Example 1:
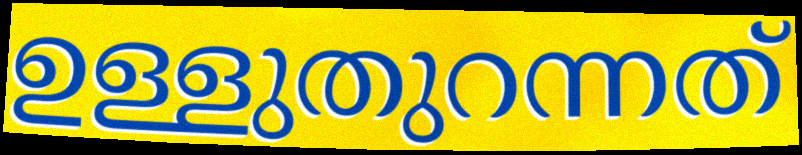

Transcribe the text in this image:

ഉള്ളുതുറന്നത്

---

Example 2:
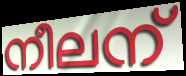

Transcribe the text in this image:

നീലന്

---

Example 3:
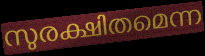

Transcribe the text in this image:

സുരക്ഷിതമെന്ന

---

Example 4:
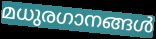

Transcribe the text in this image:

മധുരഗാനങ്ങൾ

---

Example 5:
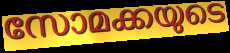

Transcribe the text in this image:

സോമക്കയുടെ